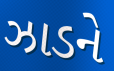
ઝાડને